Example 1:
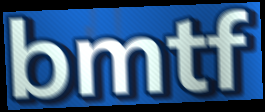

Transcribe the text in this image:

bmtf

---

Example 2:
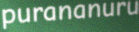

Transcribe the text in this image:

purananuru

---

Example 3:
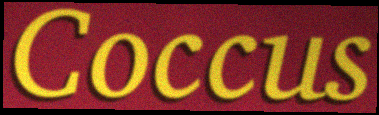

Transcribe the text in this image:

Coccus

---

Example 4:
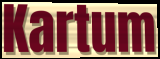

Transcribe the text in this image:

Kartum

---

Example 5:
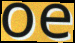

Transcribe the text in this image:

oe